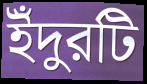
ইঁদুরটি